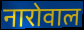
नारोवाल